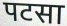
पटसा